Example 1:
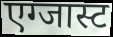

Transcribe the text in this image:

एग्जास्ट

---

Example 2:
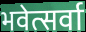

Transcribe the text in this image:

भवेत्सर्वा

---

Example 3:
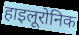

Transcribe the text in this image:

हाइलूरोनिक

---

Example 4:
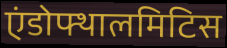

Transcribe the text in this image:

एंडोफ्थालमिटिस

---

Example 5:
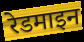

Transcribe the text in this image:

रेडमाइन